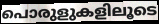
പൊരുളുകളിലൂടെ